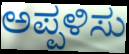
ಅಪ್ಪಳಿಸು